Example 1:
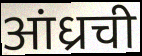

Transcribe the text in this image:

आंध्रची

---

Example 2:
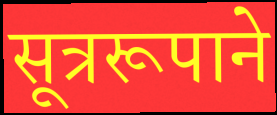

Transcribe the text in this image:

सूत्ररूपाने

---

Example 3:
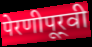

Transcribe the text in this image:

पेरणीपूर्वी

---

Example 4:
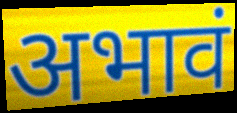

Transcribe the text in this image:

अभावं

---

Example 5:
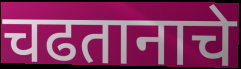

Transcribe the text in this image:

चढतानाचे